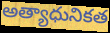
అత్యాధునికత